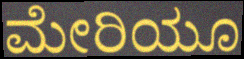
ಮೇರಿಯೂ